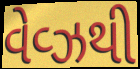
વેવ્ઝથી